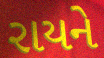
રાયને